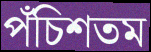
পঁচিশতম